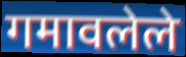
गमावलेले